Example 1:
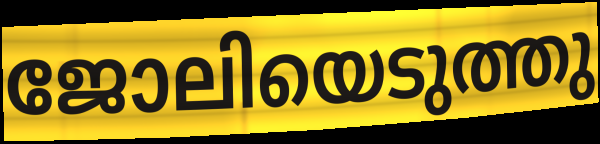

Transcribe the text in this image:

ജോലിയെടുത്തു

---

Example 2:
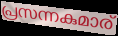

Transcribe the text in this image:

പ്രസന്നകുമാര്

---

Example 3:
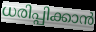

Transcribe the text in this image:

ധരിപ്പിക്കാൻ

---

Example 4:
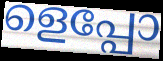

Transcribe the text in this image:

ളെപ്പോ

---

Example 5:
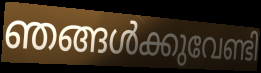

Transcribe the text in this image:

ഞങ്ങൾക്കുവേണ്ടി